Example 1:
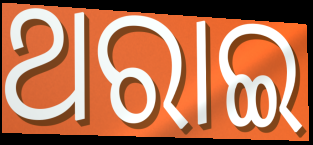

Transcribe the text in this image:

ଥରାଇ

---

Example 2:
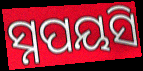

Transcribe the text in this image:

ସ୍ନପୟସି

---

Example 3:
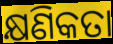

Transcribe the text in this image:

କ୍ଷଣିକତା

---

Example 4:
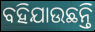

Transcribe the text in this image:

ବହିଯାଉଛନ୍ତି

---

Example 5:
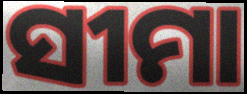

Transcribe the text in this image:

ସୀମା